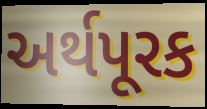
અર્થપૂરક